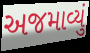
અજમાવ્યું